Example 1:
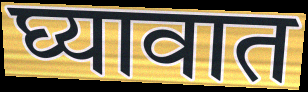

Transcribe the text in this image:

घ्यावात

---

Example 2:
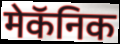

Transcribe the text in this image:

मेकॅनिक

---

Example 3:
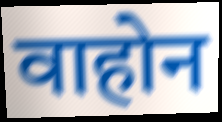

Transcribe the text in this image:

वाहोन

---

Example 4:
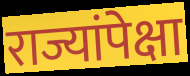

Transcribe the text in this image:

राज्यांपेक्षा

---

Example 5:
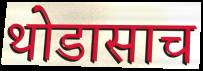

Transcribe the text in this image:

थोडासाच